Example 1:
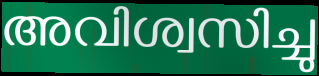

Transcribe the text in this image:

അവിശ്വസിച്ചു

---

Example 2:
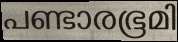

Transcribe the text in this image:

പണ്ടാരഭൂമി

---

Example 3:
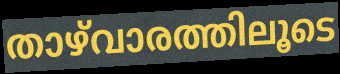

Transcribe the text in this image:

താഴ്‌വാരത്തിലൂടെ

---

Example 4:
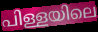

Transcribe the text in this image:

പിള്ളയിലെ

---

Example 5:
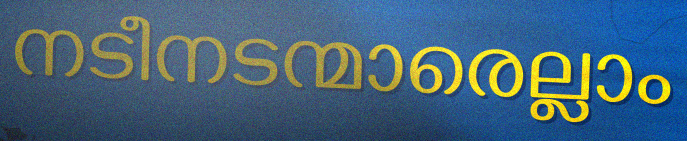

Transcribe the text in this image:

നടീനടന്മാരെല്ലാം